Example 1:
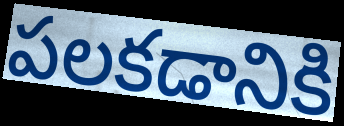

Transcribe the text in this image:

పలకడానికి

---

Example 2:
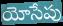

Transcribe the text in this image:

యోసేపు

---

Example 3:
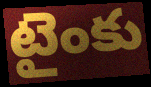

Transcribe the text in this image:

టైంకు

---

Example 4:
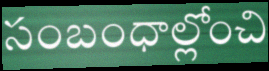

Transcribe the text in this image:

సంబంధాల్లోంచి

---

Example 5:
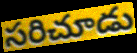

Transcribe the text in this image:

సరిచూడు